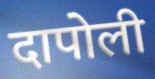
दापोली